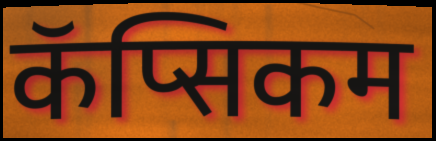
कॅप्सिकम